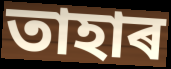
তাহাৰ